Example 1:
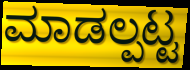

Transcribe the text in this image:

ಮಾಡಲ್ಪಟ್ಟ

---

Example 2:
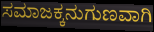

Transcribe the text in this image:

ಸಮಾಜಕ್ಕನುಗುಣವಾಗಿ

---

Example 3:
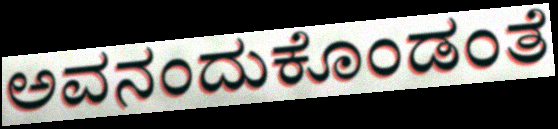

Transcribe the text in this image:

ಅವನಂದುಕೊಂಡಂತೆ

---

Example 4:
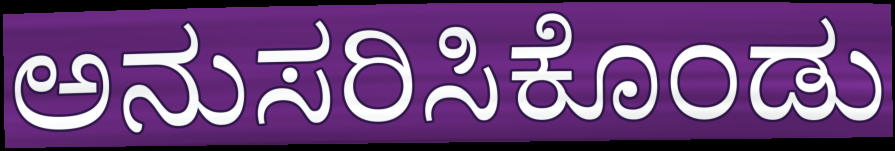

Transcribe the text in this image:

ಅನುಸರಿಸಿಕೊಂಡು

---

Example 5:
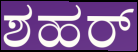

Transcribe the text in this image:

ಶಹರ್